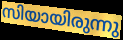
സിയായിരുന്നു